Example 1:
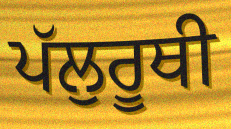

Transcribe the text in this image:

ਪੱਲੁਰੂਥੀ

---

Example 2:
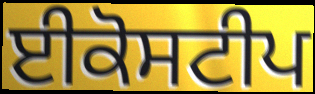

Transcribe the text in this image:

ਈਕੋਸਟੀਪ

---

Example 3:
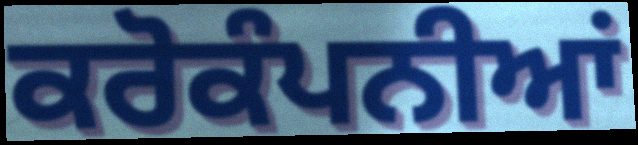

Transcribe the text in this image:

ਕਰੋਕੰਪਨੀਆਂ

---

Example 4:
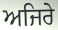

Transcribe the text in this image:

ਅਜਿਰੇ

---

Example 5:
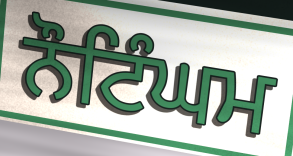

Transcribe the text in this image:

ਨੌਟਿੰਘਮ